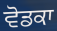
ਵੋਡਕਾ